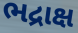
ભદ્રાક્ષ